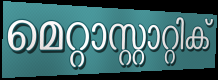
മെറ്റാസ്റ്റാറ്റിക്